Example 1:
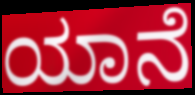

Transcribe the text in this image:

ಯಾನೆ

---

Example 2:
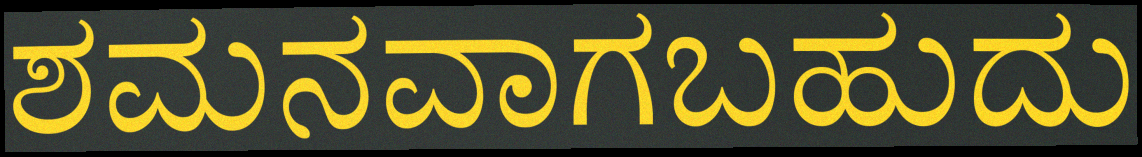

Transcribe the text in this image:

ಶಮನವಾಗಬಹುದು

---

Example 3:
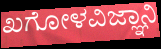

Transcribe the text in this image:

ಖಗೋಳವಿಜ್ಞಾನಿ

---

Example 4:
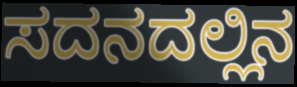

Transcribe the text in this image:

ಸದನದಲ್ಲಿನ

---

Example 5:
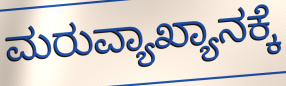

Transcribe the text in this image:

ಮರುವ್ಯಾಖ್ಯಾನಕ್ಕೆ